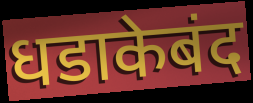
धडाकेबंद